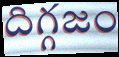
దిగ్గజం